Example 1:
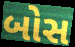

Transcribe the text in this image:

બોસ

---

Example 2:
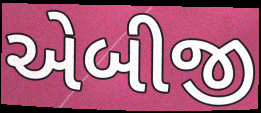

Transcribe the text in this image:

એબીજી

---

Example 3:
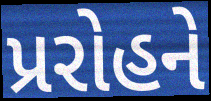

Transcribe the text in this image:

પ્રરોહને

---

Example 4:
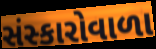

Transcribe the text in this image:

સંસ્કારોવાળા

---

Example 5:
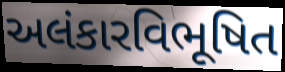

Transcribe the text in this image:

અલંકારવિભૂષિત